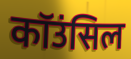
कॉउंसिल